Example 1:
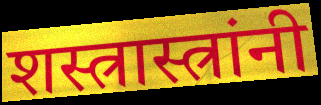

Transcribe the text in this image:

शस्त्रास्त्रांनी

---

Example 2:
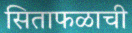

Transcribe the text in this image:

सिताफळाची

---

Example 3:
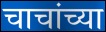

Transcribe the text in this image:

चाचांच्या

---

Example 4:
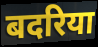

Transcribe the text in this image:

बदरिया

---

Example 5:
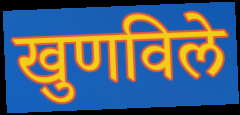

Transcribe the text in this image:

खुणविले